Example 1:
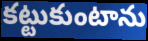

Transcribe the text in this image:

కట్టుకుంటాను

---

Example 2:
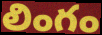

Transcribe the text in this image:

లింగం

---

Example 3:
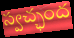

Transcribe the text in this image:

స్వచ్ఛంద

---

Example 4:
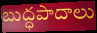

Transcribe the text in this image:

బుద్ధపాదాలు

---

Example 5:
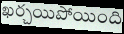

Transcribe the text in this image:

ఖర్చయిపోయింది